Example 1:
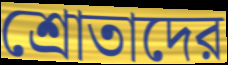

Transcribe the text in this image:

শ্রোতাদের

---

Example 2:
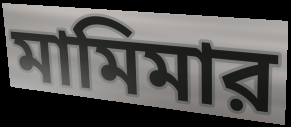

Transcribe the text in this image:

মামিমার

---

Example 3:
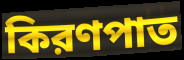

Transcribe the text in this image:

কিরণপাত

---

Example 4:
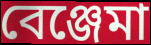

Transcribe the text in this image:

বেঞ্জেমা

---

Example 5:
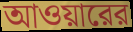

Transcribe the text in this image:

আওয়ারের